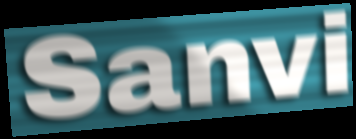
Sanvi